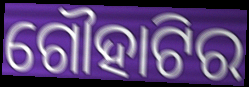
ଗୌହାଟିର